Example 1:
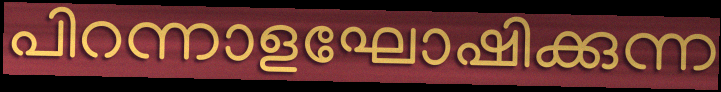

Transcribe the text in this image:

പിറന്നാളഘോഷിക്കുന്ന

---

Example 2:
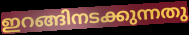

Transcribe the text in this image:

ഇറങ്ങിനടക്കുന്നതു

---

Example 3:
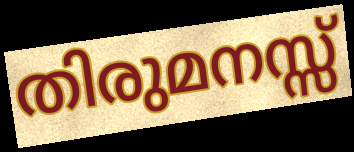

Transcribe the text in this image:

തിരുമനസ്സ്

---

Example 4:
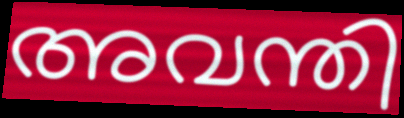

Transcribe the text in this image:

അവന്തി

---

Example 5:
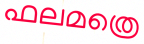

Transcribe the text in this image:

ഫലമത്രെ